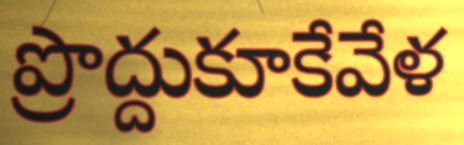
ప్రొద్దుకూకేవేళ